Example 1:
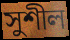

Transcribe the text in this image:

সুশীল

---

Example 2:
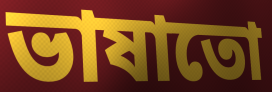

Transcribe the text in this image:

ভাষাতো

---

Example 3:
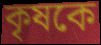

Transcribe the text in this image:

কৃষকে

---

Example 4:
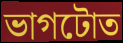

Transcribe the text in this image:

ভাগটোত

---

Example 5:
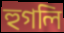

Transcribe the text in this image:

হুগলি